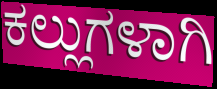
ಕಲ್ಲುಗಳಾಗಿ